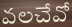
వలచేవో